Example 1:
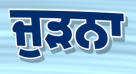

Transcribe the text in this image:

ਜੁੜਨਾ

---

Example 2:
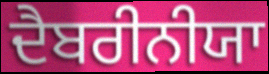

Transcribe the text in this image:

ਦੈਬਰੀਨੀਯਾ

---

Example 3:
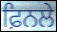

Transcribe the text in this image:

ਫ਼ਿਨਲੇ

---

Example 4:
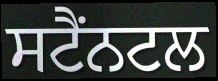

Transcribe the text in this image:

ਸਟੈਂਨਟਲ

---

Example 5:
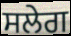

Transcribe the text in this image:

ਸਲੇਗ